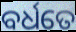
ବର୍ଧତେ